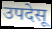
उपदेसू